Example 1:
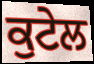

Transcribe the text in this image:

ਕੁਟੇਲ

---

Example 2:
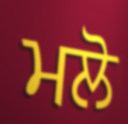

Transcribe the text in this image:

ਮਲੋ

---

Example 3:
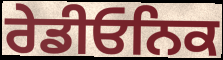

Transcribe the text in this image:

ਰੇਡੀਓਨਿਕ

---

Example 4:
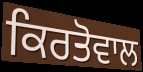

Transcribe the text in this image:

ਕਿਰਤੋਵਾਲ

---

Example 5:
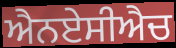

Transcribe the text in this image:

ਐਨਏਸੀਐਚ